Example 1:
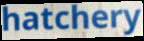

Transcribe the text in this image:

hatchery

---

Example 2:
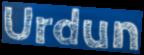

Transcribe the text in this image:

Urdun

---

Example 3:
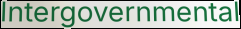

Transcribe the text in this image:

Intergovernmental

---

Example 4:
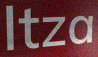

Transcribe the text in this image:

Itza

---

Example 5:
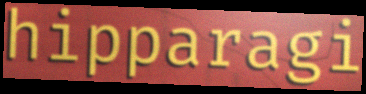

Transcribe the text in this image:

hipparagi